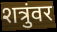
शत्रुंवर